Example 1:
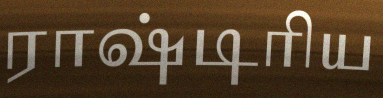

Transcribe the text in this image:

ராஷ்டிரிய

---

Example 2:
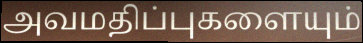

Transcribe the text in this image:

அவமதிப்புகளையும்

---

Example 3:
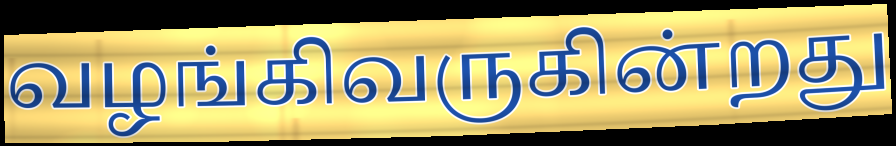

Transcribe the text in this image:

வழங்கிவருகின்றது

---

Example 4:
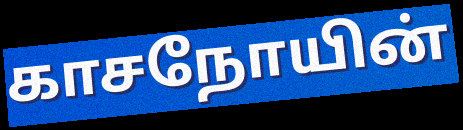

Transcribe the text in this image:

காசநோயின்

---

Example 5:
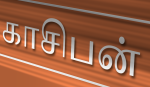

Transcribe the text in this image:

காசிபன்